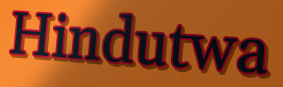
Hindutwa